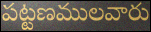
పట్టణములవారు